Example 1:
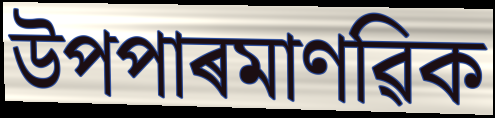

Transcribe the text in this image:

উপপাৰমাণৱিক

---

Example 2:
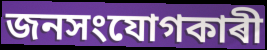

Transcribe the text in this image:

জনসংযোগকাৰী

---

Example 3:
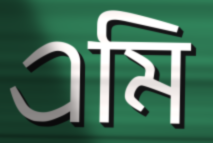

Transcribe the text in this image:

এমি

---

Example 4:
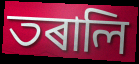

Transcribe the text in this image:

তৰালি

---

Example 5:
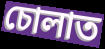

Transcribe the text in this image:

চোলাত